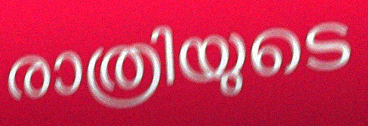
രാത്രിയുടെ